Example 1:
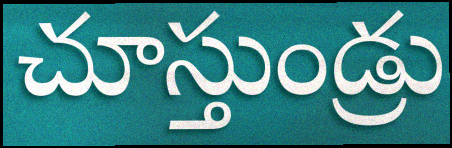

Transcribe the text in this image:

చూస్తుండ్రు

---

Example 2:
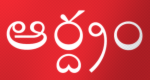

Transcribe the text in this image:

ఆర్ద్రం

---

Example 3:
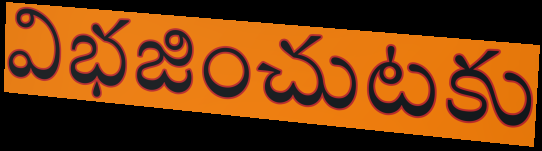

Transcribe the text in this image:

విభజించుటకు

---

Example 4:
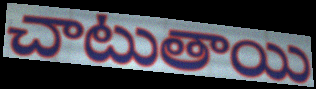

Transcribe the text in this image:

చాటుతాయి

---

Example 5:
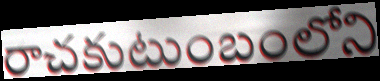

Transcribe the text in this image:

రాచకుటుంబంలోని